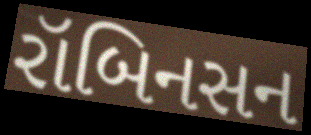
રૉબિનસન